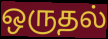
ஒருதல்